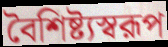
বৈশিষ্ট্যস্বরূপ